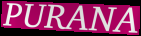
PURANA